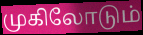
முகிலோடும்